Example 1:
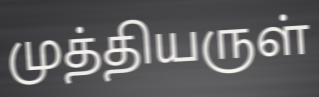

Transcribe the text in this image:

முத்தியருள்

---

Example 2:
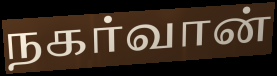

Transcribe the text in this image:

நகர்வான்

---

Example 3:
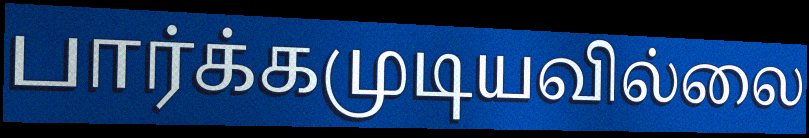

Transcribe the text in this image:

பார்க்கமுடியவில்லை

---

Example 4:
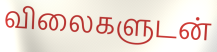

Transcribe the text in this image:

விலைகளுடன்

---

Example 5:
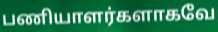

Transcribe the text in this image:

பணியாளர்களாகவே